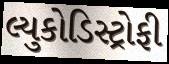
લ્યુકોડિસ્ટ્રોફી